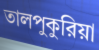
তালপুকুরিয়া